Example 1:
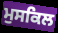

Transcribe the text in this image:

ਮੁਸਕਿਲ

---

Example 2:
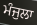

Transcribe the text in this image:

ਮੰਜੁਲਾ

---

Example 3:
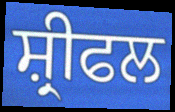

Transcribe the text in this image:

ਸ਼੍ਰੀਫਲ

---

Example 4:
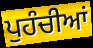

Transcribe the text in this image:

ਪੁਹੰਚੀਆਂ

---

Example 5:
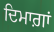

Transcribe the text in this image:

ਦਿਮਾਗ਼ਾਂ